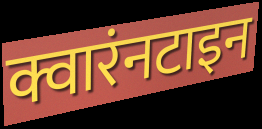
क्वारंनटाइन